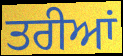
ਤਰੀਆਂ